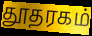
தூதரகம்